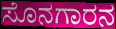
ಸೊನಗಾರನ